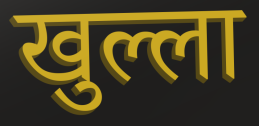
खुल्ला